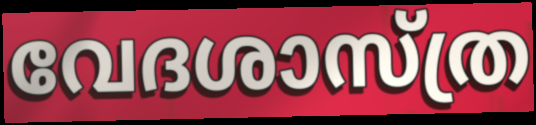
വേദശാസ്ത്ര